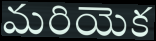
మరియెక